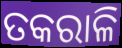
ତକରାଳି